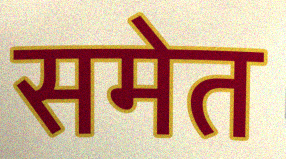
समेत